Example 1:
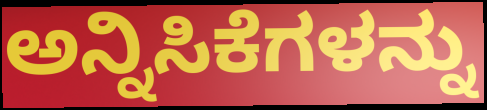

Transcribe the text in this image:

ಅನ್ನಿಸಿಕೆಗಳನ್ನು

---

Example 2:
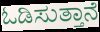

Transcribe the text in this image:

ಓಡಿಸುತ್ತಾನೆ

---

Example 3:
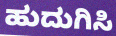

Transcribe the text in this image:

ಹುದುಗಿಸಿ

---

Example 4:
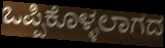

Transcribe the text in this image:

ಒಪ್ಪಿಕೊಳ್ಳಲಾಗದ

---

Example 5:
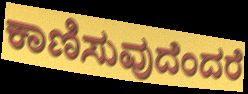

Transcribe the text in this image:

ಕಾಣಿಸುವುದೆಂದರೆ